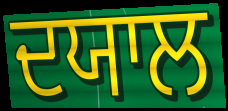
ਦਯਾਲ